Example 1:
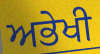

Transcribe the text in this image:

ਅਭੇਖੀ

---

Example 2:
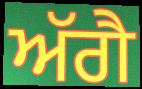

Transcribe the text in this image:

ਅੱਗੈ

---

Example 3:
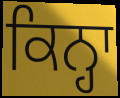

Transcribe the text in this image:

ਕਿਨ੍ਹਾ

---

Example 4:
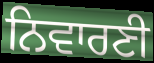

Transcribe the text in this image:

ਨਿਵਾਰਣੀ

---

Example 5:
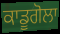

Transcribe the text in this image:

ਕਾਡੂਗੋਲਾ